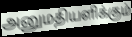
அனுமதியளிக்கும்